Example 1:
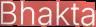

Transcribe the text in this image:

Bhakta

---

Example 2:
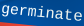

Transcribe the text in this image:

germinate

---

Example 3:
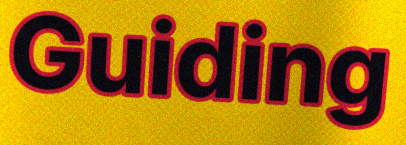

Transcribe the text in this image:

Guiding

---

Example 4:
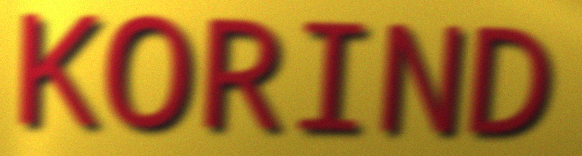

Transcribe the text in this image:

KORIND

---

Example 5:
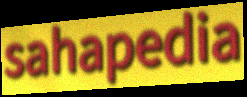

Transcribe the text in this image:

sahapedia